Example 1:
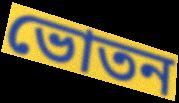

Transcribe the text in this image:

ভোতন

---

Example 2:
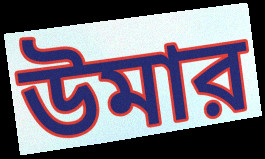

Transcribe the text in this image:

উমার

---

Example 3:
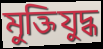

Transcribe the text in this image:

মুক্তিযুদ্ধ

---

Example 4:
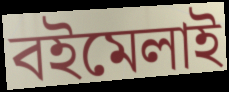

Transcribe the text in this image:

বইমেলাই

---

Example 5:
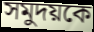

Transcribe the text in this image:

সমুদয়কে